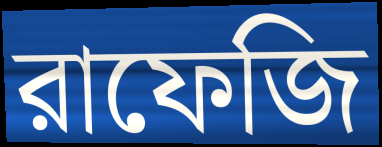
রাফেজি